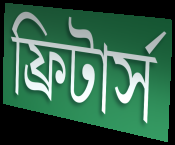
ফ্রিটার্স